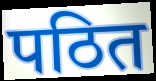
पठित